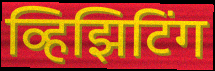
व्हिझिटिंग